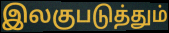
இலகுபடுத்தும்